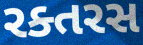
રક્તરસ